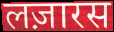
लज़ारस